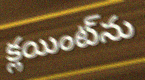
క్లయింట్‌ను